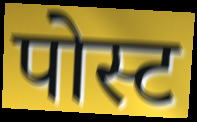
पोस्ट